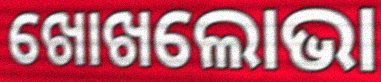
ଖୋଖଲୋଭା